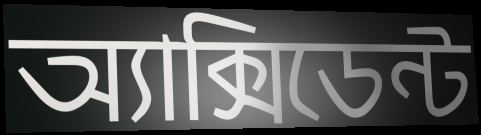
অ্যাক্সিডেন্ট